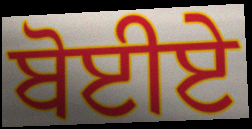
ਬੋਈਏ